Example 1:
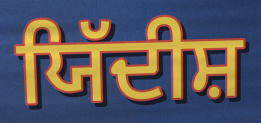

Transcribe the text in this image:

ਯਿੱਦੀਸ਼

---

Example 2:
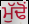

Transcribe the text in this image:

ਮੁੱਢੋਂ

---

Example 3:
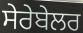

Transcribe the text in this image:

ਸੇਰੇਬੇਲਰ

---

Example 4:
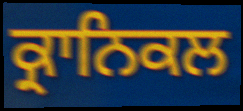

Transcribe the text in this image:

ਕ੍ਰਾਨਿਕਲ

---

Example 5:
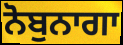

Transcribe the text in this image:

ਨੋਬੁਨਾਗਾ